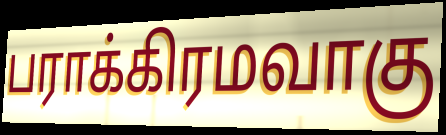
பராக்கிரமவாகு